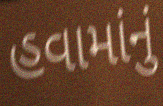
હવામાંનું